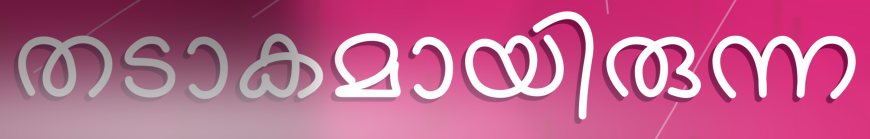
തടാകമായിരുന്ന